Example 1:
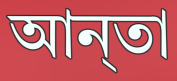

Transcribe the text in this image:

আন্‌তা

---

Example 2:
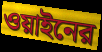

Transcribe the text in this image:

ওয়াইনের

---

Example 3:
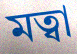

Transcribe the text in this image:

মত্বা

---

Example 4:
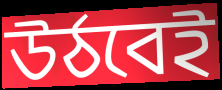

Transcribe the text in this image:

উঠবেই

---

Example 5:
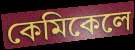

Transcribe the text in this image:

কেমিকেলে